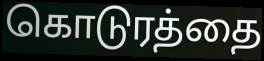
கொடுரத்தை